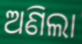
ଅଣିଲା